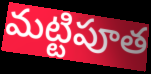
మట్టిపూత